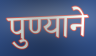
पुण्याने